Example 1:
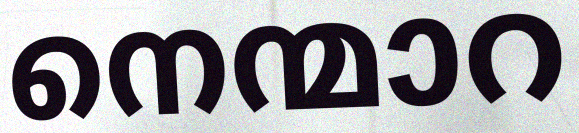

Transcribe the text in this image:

നെന്മാറ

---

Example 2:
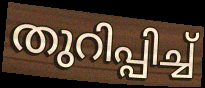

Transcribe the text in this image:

തുറിപ്പിച്ച്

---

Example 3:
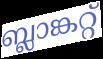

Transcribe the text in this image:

ബ്ലാങ്കറ്റ്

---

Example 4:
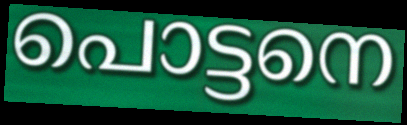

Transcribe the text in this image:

പൊട്ടനെ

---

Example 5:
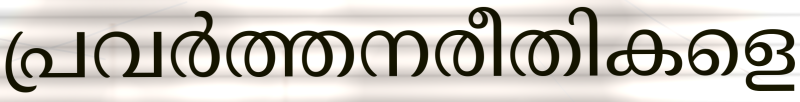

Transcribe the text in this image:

പ്രവർത്തനരീതികളെ